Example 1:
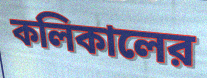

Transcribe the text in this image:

কলিকালের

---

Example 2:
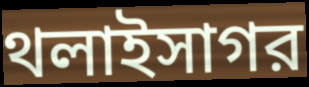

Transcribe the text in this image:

থলাইসাগর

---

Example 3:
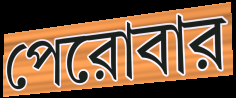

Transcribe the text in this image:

পেরোবার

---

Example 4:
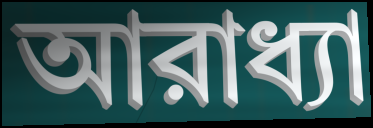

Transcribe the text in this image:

আরাধ্যা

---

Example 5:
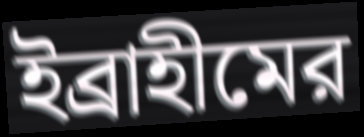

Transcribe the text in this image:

ইব্রাহীমের